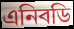
এনিবডি